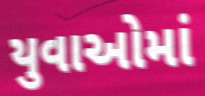
યુવાઓમાં